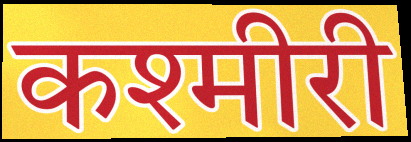
कश्‍मीरी